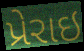
પ્રેરાઇ